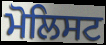
ਮੋਲਿਸਟ